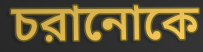
চরানোকে